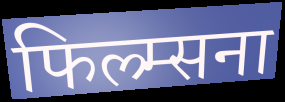
फिल्म्सना